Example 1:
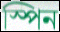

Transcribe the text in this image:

স্পিন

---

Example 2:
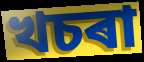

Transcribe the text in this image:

খচৰা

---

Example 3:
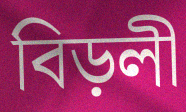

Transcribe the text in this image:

বিড়লী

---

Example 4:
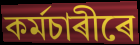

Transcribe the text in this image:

কৰ্মচাৰীৰে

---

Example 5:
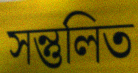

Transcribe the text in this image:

সন্তুলিত